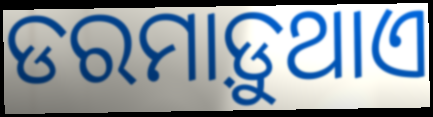
ଡରମାଡ଼ୁଥାଏ